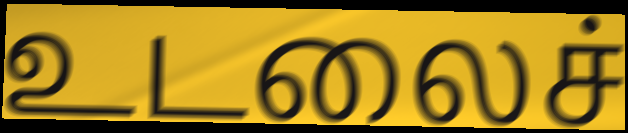
உடலைச்